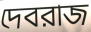
দেবরাজ